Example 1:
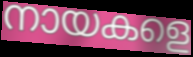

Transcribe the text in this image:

നായകളെ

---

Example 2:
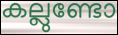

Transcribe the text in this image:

കല്ലുണ്ടോ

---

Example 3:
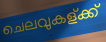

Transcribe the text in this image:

ചെലവുകള്ക്ക്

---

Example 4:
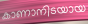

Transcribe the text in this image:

കാണാനിടയായ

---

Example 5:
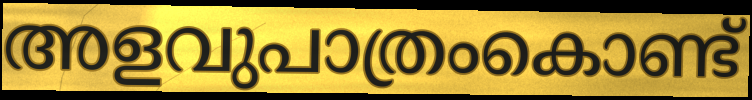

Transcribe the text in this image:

അളവുപാത്രംകൊണ്ട്